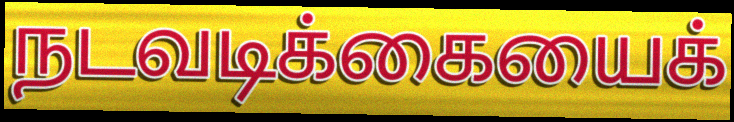
நடவடிக்கையைக்